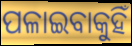
ପଳାଇବାକୁହିଁ